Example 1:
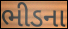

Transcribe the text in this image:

ભીડના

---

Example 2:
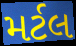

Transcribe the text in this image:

મર્ટલ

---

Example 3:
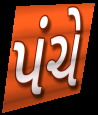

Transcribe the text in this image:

પંચે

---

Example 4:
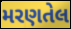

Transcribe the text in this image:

મરણતેલ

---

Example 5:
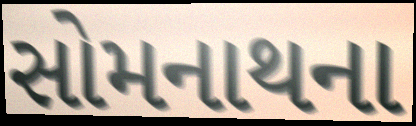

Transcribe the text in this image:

સોમનાથના